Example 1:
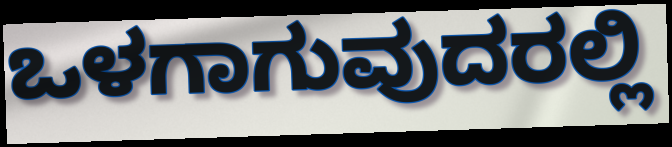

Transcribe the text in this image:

ಒಳಗಾಗುವುದರಲ್ಲಿ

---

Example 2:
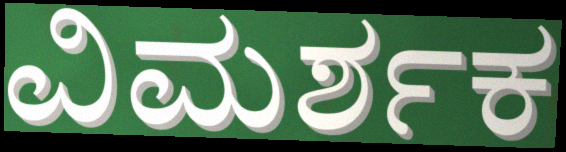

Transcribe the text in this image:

ವಿಮರ್ಶಕ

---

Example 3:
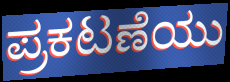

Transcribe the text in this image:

ಪ್ರಕಟಣೆಯು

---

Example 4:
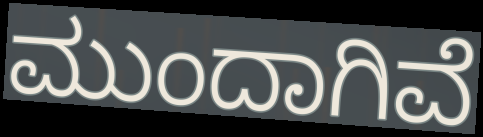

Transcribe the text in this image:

ಮುಂದಾಗಿವೆ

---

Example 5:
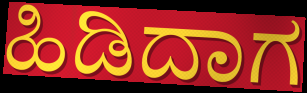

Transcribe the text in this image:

ಹಿಡಿದಾಗ